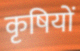
कृषियों